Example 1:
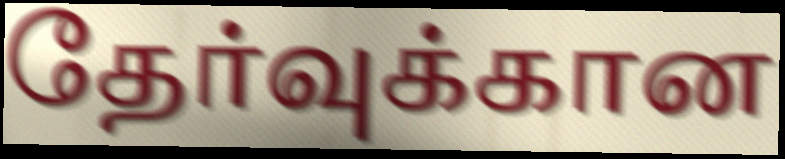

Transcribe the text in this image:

தேர்வுக்கான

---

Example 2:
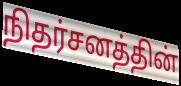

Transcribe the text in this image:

நிதர்சனத்தின்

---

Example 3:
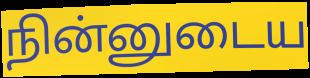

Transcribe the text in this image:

நின்னுடைய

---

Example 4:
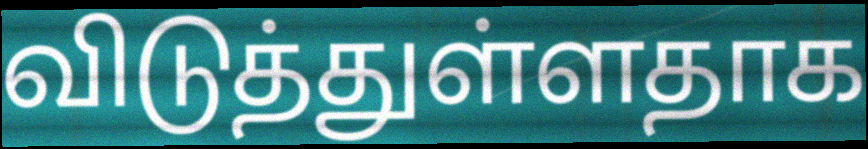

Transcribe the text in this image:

விடுத்துள்ளதாக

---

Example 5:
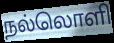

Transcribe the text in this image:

நல்லொளி